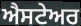
ਐਸਟੇਅਰ